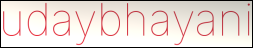
udaybhayani